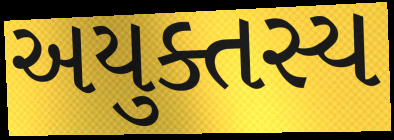
અયુક્તસ્ય